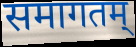
समागतम्